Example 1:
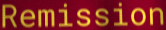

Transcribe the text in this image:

Remission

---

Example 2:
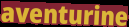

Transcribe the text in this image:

aventurine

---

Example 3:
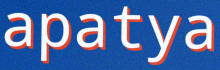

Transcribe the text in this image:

apatya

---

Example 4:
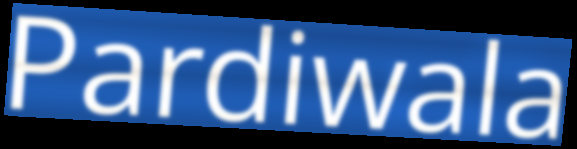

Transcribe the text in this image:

Pardiwala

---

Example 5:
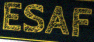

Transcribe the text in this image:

ESAF